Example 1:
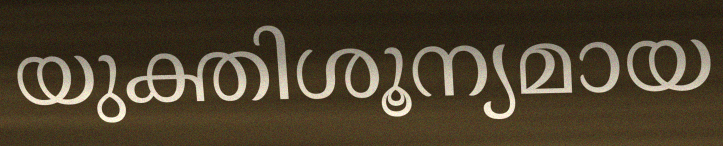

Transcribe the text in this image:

യുക്തിശൂന്യമായ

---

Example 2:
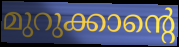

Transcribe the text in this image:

മുറുക്കാന്റെ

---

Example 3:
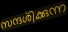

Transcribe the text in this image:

സന്ദൎശിക്കുന്ന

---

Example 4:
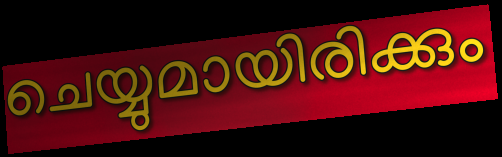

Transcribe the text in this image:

ചെയ്യുമായിരിക്കും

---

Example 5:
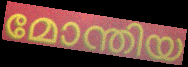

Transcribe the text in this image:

മോന്തിയ